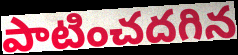
పాటించదగిన